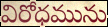
విరోధమును